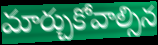
మార్చుకోవాల్సిన